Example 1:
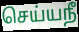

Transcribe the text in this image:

செய்யநீ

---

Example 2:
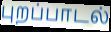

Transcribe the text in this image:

புறப்பாடல்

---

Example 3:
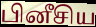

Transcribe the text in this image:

பினீசிய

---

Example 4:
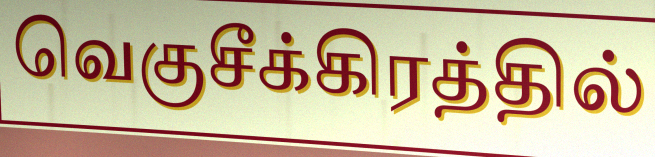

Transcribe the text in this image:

வெகுசீக்கிரத்தில்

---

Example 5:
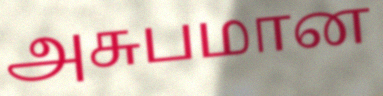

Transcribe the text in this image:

அசுபமான